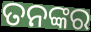
ତନଙ୍କର